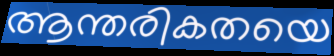
ആന്തരികതയെ